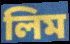
লিম